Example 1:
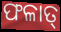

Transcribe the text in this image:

ଫଳାତ୍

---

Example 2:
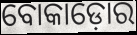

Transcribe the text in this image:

ବୋକାଡ଼ୋର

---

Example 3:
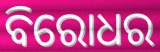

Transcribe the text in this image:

ବିରୋଧର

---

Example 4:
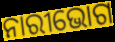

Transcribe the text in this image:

ନାରୀଭୋଗ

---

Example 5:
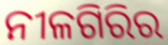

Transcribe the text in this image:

ନୀଳଗିରିର